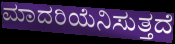
ಮಾದರಿಯೆನಿಸುತ್ತದೆ